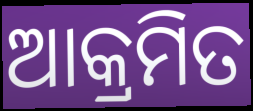
ଆକ୍ରମିତ